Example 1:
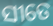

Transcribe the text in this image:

ସୀତେ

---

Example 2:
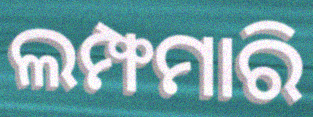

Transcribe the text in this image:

ଲମ୍ଫମାରି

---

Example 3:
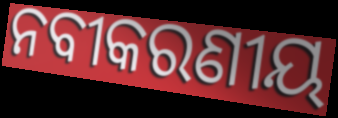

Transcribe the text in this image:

ନବୀକରଣୀୟ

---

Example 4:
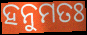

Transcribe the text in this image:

ହନୁମତଃ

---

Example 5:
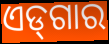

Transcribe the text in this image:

ଏଡ୍‌ଗାର